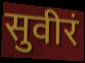
सुवीरं